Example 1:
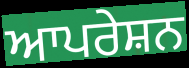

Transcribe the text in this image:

ਆਪਰੇਸ਼ਨ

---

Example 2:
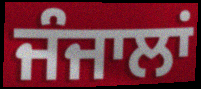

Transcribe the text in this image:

ਜੰਜਾਲਾਂ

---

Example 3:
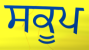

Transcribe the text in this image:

ਸਕੂਪ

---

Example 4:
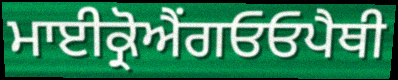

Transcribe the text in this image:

ਮਾਈਕ੍ਰੋਐਂਗਓਓਪੈਥੀ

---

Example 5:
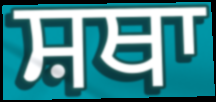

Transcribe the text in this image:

ਸ਼ਥਾ